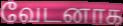
வேடனாக